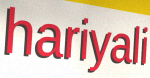
hariyali